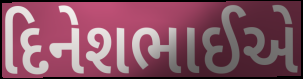
દિનેશભાઈએ